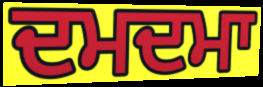
ਦਮਦਮਾ